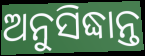
ଅନୁସିଦ୍ଧାନ୍ତ